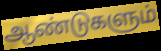
ஆண்டுகளும்